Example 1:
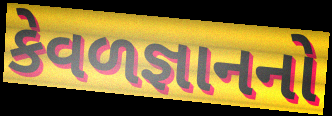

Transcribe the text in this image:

કેવળજ્ઞાનનો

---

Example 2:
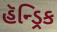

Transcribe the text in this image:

હૅન્ડ્રિક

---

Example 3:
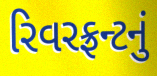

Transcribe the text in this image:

રિવરફ્રન્ટનું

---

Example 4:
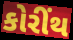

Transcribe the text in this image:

કોરીંથ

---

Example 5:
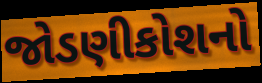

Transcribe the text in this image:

જોડણીકોશનો